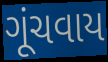
ગૂંચવાય